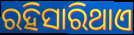
ରହିସାରିଥାଏ